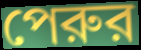
পেরুর